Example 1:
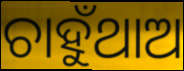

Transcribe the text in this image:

ଚାହୁଁଥାଅ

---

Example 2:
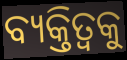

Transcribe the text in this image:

ବ୍ୟକ୍ତିତ୍ଵକୁ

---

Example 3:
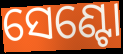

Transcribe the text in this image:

ସେଣ୍ଟୋ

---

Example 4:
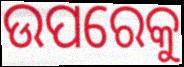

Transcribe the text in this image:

ଉପରେକୁ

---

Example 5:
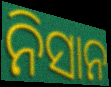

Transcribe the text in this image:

ନିସାନ